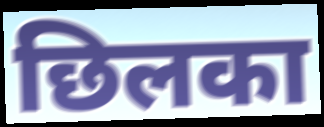
छिलका